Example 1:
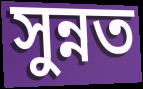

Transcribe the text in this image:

সুন্নত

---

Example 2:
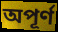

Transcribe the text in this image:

অপূর্ণ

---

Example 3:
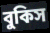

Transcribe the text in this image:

বুকিস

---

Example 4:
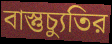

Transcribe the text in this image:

বাস্তুচ্যুতির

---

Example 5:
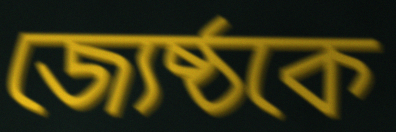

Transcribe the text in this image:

জ্যেষ্ঠকে